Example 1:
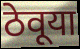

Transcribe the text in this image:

ठेवूया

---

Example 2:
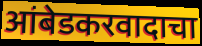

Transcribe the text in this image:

आंबेडकरवादाचा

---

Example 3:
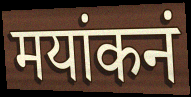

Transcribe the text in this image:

मयांकनं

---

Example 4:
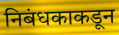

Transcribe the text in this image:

निबंधकाकडून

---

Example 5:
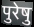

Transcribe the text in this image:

पुरेषु